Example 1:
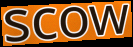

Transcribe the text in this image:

scow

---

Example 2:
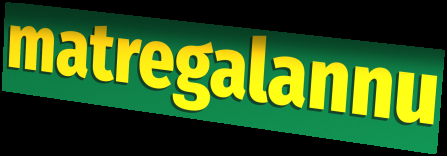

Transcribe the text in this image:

matregalannu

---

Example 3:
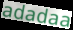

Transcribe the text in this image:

adadaa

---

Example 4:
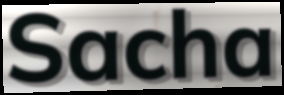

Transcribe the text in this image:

Sacha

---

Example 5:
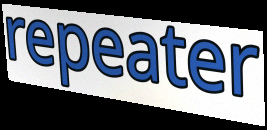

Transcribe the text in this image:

repeater